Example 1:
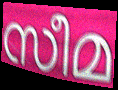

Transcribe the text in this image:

സീമ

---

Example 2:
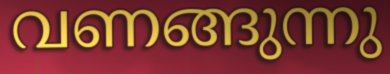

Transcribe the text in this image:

വണങ്ങുന്നു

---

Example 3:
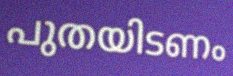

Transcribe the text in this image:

പുതയിടണം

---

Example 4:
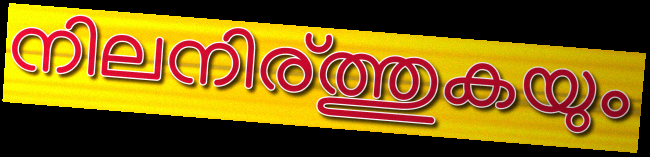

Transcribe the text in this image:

നിലനിര്ത്തുകയും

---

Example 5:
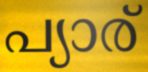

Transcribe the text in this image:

പ്യാര്